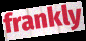
frankly